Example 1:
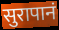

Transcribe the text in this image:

सुरापानं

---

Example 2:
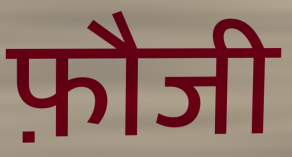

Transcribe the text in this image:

फ़ौजी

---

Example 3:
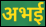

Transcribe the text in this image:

अभई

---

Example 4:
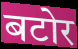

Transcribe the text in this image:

बटोर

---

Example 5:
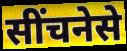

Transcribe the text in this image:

सींचनेसे